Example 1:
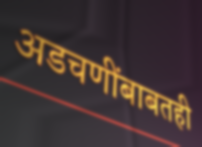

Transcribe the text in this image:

अडचणींबाबतही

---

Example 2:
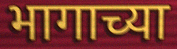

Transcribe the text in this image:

भागाच्या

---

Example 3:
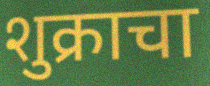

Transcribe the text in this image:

शुक्राचा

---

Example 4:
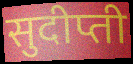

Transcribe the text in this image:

सुदीप्ती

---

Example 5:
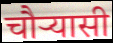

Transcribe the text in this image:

चौर्‍यासी